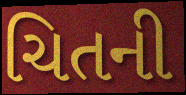
ચિતની